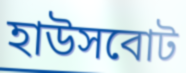
হাউসবোট